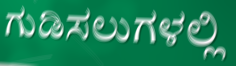
ಗುಡಿಸಲುಗಳಲ್ಲಿ